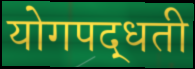
योगपद्धती